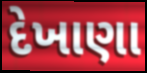
દેખાણા